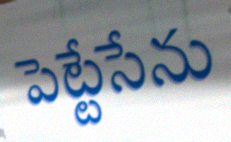
పెట్టేసేను